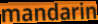
mandarin